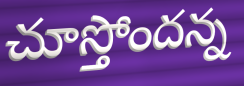
చూస్తోందన్న